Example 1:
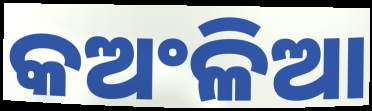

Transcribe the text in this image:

କଅଂଳିଆ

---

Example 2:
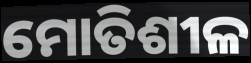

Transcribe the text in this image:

ମୋତିଶୀଳ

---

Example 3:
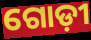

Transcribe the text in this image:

ଗୋଡ଼ୀ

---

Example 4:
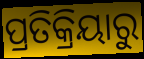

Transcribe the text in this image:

ପ୍ରତିକ୍ରିୟାରୁ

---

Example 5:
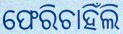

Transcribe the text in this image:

ଫେରିଚାହିଁଲି